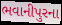
ભવાનીપુરના